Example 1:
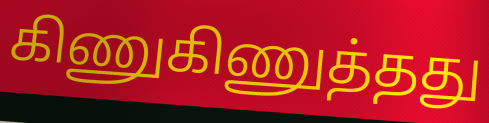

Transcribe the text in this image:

கிணுகிணுத்தது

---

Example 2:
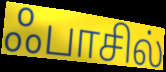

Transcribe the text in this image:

ஃபாசில்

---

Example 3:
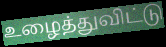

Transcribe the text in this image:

உழைத்துவிட்டு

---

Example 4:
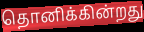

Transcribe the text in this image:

தொனிக்கின்றது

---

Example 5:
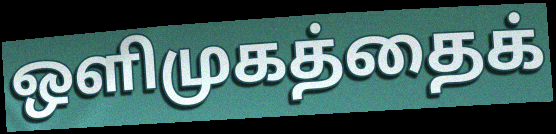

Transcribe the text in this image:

ஒளிமுகத்தைக்